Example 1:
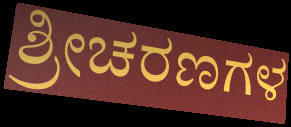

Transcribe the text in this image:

ಶ್ರೀಚರಣಗಳ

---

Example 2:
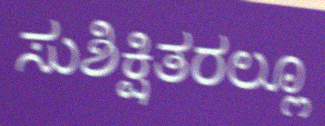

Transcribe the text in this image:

ಸುಶಿಕ್ಷಿತರಲ್ಲೂ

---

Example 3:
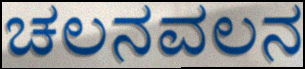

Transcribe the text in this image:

ಚಲನವಲನ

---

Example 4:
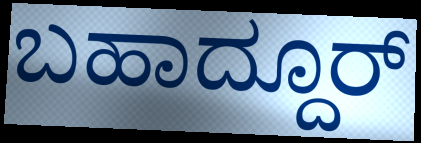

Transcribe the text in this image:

ಬಹಾದ್ದೂರ್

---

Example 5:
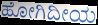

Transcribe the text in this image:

ಹೋಗಿದೀಯ